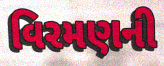
વિરમણની